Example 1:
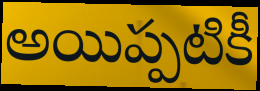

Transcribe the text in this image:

అయిప్పటికీ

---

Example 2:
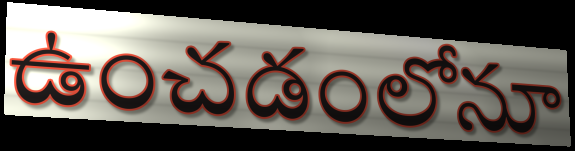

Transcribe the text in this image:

ఉంచడంలోనూ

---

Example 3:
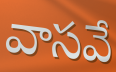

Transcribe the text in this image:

వాసవే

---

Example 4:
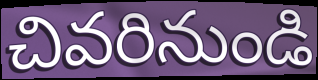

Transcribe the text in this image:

చివరినుండి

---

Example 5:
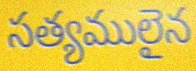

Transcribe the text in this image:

సత్యములైన